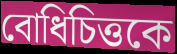
বোধিচিত্তকে